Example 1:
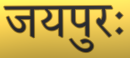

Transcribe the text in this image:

जयपुरः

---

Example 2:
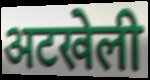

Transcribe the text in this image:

अटखेली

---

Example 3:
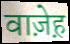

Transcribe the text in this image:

वाज़ेह़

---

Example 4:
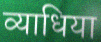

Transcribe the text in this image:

व्याधिया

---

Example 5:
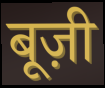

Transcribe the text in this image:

बूज़ी